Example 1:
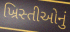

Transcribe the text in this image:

ખ્રિસ્તીઓનું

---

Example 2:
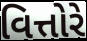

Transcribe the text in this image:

વિત્તોરે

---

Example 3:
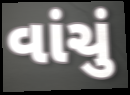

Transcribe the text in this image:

વાંચું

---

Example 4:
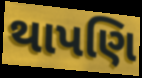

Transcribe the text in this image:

થાપણિ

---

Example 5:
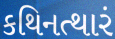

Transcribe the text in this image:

કથિનત્થારં